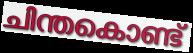
ചിന്തകൊണ്ട്